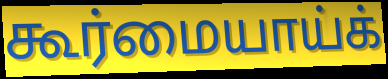
கூர்மையாய்க்